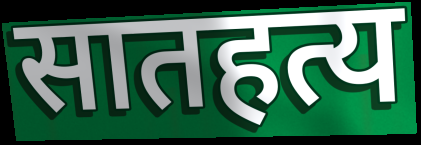
सातहत्य